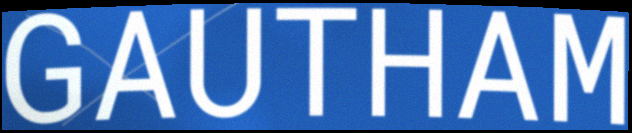
GAUTHAM